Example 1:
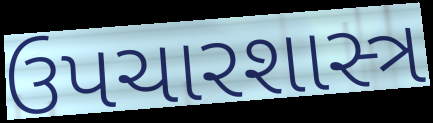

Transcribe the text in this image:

ઉપચારશાસ્ત્ર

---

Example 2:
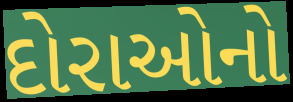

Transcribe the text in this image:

દોરાઓનો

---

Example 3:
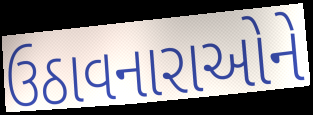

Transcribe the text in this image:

ઉઠાવનારાઓને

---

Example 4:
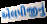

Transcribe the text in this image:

એલપીજીનું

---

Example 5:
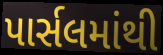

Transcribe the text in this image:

પાર્સલમાંથી